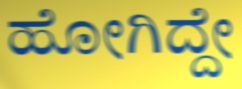
ಹೋಗಿದ್ದೇ